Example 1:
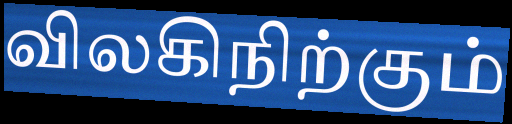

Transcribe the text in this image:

விலகிநிற்கும்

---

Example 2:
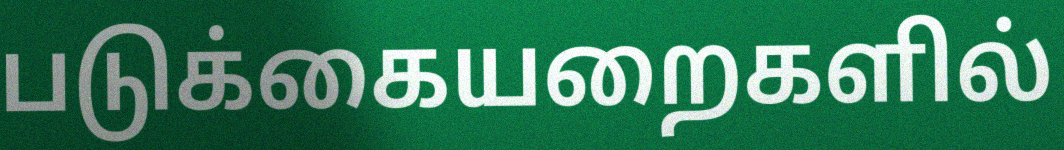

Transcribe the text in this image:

படுக்கையறைகளில்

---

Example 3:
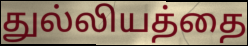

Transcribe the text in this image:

துல்லியத்தை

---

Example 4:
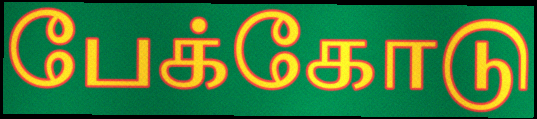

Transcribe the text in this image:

பேக்கோடு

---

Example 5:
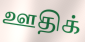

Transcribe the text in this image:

ஊதிக்